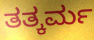
ತತ್ಕರ್ಮ